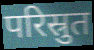
परिस्रुत